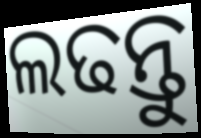
ଲଢନ୍ତୁ